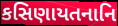
કસિણાયતનાનિ